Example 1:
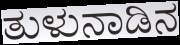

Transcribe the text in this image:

ತುಳುನಾಡಿನ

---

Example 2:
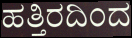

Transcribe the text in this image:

ಹತ್ತಿರದಿಂದ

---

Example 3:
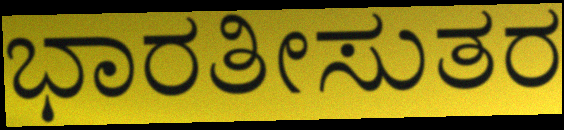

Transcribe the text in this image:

ಭಾರತೀಸುತರ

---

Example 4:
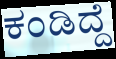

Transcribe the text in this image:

ಕಂಡಿದ್ದೆ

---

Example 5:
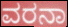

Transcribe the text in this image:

ವರನಾ